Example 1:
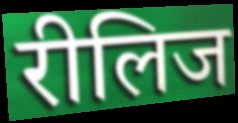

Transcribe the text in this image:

रीलिज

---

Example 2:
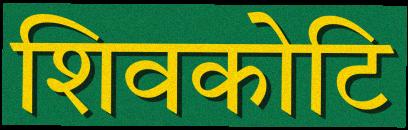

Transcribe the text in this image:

शिवकोटि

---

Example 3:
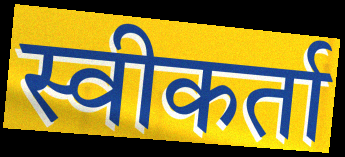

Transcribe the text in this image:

स्वीकर्ता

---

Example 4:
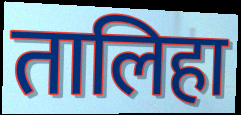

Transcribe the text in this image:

तालिहा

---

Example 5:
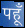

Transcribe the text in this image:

पहूँ